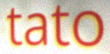
tato